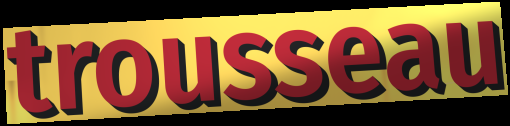
trousseau